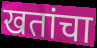
खतांचा